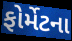
ફોર્મેટના